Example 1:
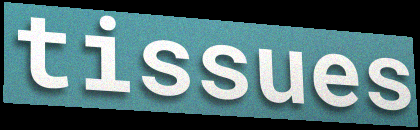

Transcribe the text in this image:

tissues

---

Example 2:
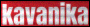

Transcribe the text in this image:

kavanika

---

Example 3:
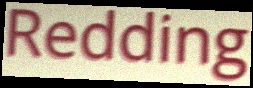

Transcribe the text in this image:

Redding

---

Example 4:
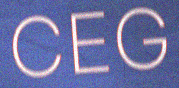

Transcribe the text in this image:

CEG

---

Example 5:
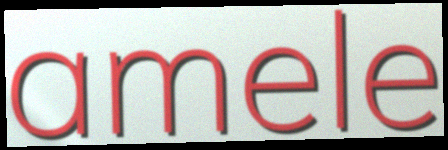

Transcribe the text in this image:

amele